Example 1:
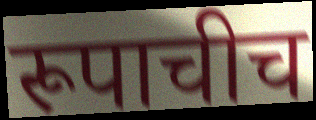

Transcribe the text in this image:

रूपाचीच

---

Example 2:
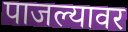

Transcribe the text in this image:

पाजल्यावर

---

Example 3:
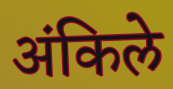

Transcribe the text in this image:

अंकिले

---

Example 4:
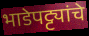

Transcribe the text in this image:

भाडेपट्ट्यांचे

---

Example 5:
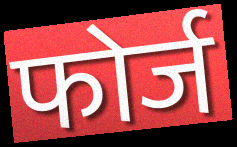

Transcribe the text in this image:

फोर्ज